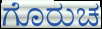
ಗೊರುಚ